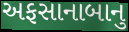
અફસાનાબાનુ